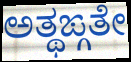
ಅತ್ಥಙ್ಗತೇ